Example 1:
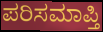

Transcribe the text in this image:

ಪರಿಸಮಾಪ್ತಿ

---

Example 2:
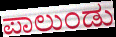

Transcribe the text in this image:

ಪಾಲುಂಡು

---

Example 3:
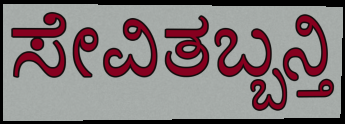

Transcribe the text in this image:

ಸೇವಿತಬ್ಬನ್ತಿ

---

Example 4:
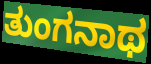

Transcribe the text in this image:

ತುಂಗನಾಥ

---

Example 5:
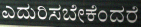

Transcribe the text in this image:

ಎದುರಿಸಬೇಕೆಂದರೆ